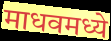
माधवमध्ये